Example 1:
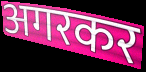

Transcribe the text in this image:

अगरकर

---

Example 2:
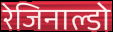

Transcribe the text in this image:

रेजिनाल्डो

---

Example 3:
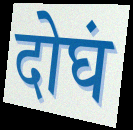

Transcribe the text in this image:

दोघं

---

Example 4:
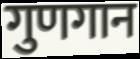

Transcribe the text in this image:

गुणगान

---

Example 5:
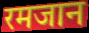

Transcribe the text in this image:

रमजान